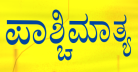
ಪಾಶ್ಚಿಮಾತ್ಯ